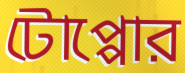
টোপ্পোর